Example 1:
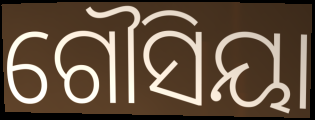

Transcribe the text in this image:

ଗୌସିୟା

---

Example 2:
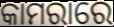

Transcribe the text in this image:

କାମରାରେ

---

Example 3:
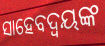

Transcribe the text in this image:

ସାହେବଦ୍ୱୟଙ୍କ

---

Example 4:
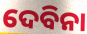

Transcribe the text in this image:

ଦେବିନା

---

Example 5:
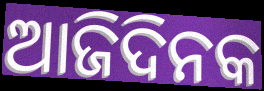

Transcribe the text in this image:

ଆଜିଦିନକ